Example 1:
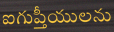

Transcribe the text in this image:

ఐగుప్తీయులను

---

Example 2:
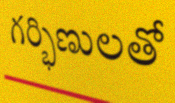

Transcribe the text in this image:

గర్భిణులతో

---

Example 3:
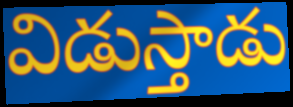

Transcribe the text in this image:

విడుస్తాడు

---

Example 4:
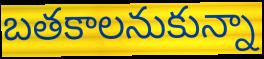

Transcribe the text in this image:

బతకాలనుకున్నా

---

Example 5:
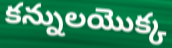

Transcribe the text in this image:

కన్నులయొక్క